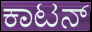
ಕಾಟನ್